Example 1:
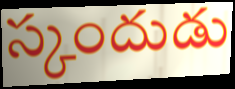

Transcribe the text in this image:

స్కందుడు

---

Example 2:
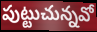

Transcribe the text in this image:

పుట్టుచున్నవో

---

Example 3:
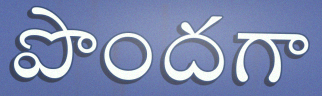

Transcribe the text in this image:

పొందగా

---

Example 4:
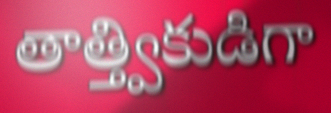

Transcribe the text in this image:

తాత్త్వికుడిగా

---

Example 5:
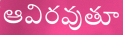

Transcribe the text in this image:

ఆవిరవుతూ